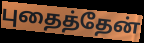
புதைத்தேன்